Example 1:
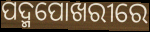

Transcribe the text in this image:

ପଦ୍ମପୋଖରୀରେ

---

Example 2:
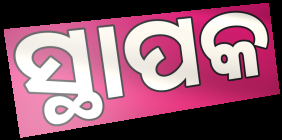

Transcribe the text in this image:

ସ୍ଥାପକ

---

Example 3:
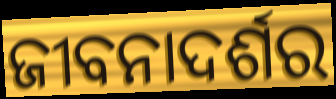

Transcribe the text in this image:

ଜୀବନାଦର୍ଶର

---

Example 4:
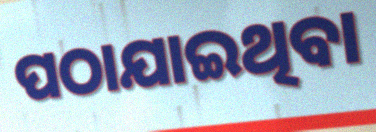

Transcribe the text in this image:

ପଠାଯାଇଥିବା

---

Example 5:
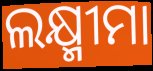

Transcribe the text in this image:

ଲକ୍ଷ୍ମୀମା